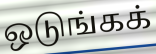
ஒடுங்கக்